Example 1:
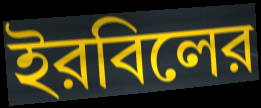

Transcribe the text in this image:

ইরবিলের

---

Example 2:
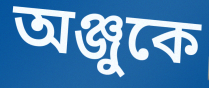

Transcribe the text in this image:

অঞ্জুকে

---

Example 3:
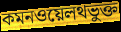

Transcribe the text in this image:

কমনওয়েলথভুক্ত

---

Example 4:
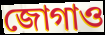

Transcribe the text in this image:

জোগাও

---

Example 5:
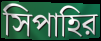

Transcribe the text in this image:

সিপাহির